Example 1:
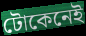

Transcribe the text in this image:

টোকেনেই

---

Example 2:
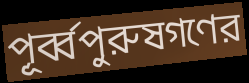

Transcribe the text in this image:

পূর্ব্বপুরুষগণের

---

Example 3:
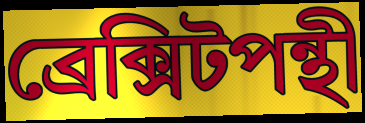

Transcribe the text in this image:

ব্রেক্সিটপন্থী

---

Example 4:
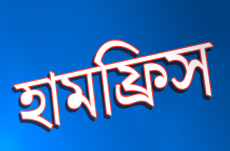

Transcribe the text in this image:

হামফ্রিস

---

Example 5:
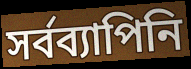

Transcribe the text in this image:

সর্বব্যাপিনি